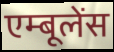
एम्बूलेंस